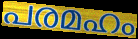
പരമഹം